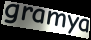
gramya